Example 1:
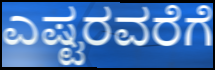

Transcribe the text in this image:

ಎಷ್ಟರವರೆಗೆ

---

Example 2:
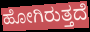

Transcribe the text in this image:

ಹೋಗಿರುತ್ತದೆ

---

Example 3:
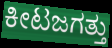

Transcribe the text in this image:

ಕೀಟಜಗತ್ತು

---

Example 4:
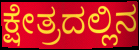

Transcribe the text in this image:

ಕ್ಷೇತ್ರದಲ್ಲಿನ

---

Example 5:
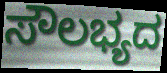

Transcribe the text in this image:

ಸೌಲಭ್ಯದ